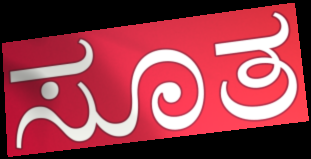
ಸೂತ